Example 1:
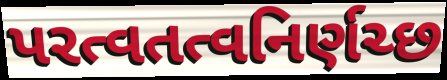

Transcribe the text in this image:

પરત્વતત્વનિર્ણચ્છ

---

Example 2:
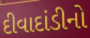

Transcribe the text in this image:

દીવાદાંડીનો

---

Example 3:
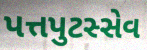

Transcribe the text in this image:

પત્તપુટસ્સેવ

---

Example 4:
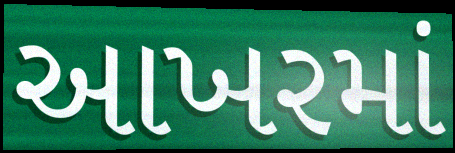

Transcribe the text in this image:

આખરમાં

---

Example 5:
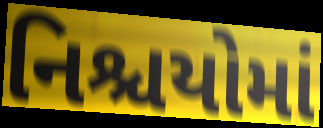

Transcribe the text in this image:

નિશ્ચયોમાં